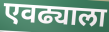
एवढ्याला